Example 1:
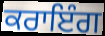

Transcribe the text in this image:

ਕਰਾਇੰਗ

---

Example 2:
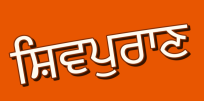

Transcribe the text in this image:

ਸ਼ਿਵਪੁਰਾਣ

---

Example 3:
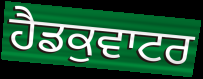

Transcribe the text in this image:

ਹੈਡਕੁਵਾਟਰ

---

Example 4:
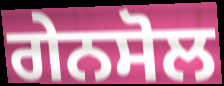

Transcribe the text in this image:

ਗੇਨਸੋਲ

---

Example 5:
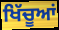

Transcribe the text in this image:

ਖਿੱਚੂਆਂ